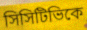
সিসিটিভিকে